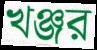
খঞ্জর